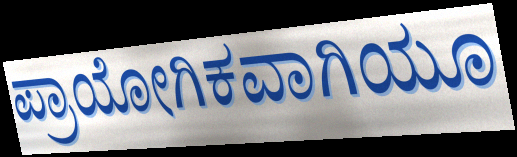
ಪ್ರಾಯೋಗಿಕವಾಗಿಯೂ